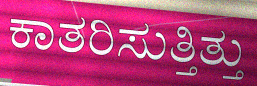
ಕಾತರಿಸುತ್ತಿತ್ತು